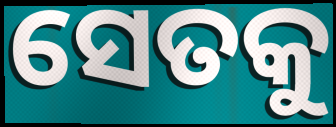
ସେତକୁ